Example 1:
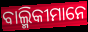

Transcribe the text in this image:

ବାଲ୍ମିକୀମାନେ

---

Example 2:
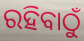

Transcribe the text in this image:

ରହିବାଠୁଁ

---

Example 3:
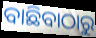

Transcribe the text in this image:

ବାଛିବାଠାରୁ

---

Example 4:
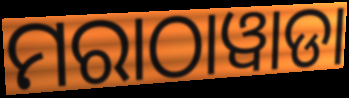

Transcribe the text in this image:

ମରାଠାୱାଡା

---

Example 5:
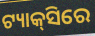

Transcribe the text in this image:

ଟ୍ୟାକ୍‍ସିରେ